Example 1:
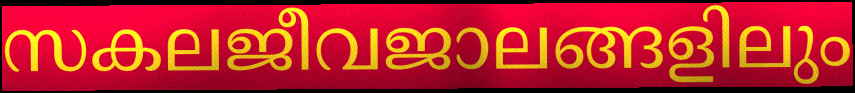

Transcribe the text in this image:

സകലജീവജാലങ്ങളിലും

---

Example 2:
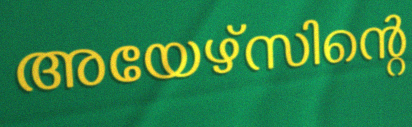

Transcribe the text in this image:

അയേഴ്സിന്റെ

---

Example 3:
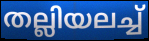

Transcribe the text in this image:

തല്ലിയലച്ച്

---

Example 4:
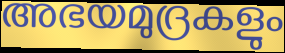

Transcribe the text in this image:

അഭയമുദ്രകളും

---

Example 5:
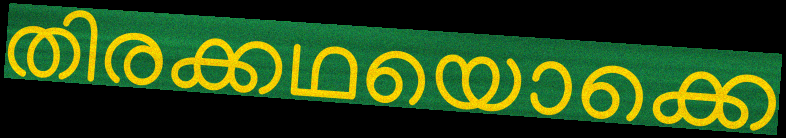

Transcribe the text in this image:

തിരക്കഥയൊക്കെ